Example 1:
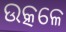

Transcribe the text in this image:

ଉତ୍କଳେ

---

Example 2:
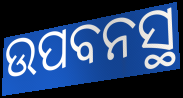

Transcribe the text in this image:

ଉପବନସ୍ଥ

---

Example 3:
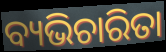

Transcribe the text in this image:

ବ୍ୟଭିଚାରିତା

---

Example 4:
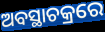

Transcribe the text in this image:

ଅବସ୍ଥାଚକ୍ରରେ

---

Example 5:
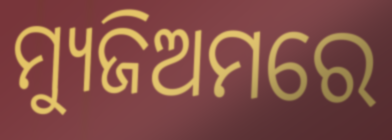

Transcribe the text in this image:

ମ୍ୟୁଜିଅମରେ